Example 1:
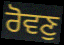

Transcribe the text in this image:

ਰੋਵਣੁ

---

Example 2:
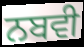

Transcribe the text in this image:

ਨਬਵੀ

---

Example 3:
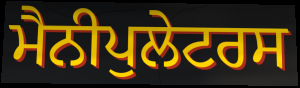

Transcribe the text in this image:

ਮੈਨੀਪੁਲੇਟਰਸ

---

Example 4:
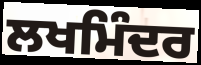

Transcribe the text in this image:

ਲਖਮਿੰਦਰ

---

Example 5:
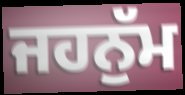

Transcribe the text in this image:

ਜਹਨੁੱਮ